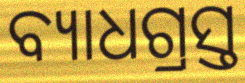
ବ୍ୟାଧଗ୍ରସ୍ତ